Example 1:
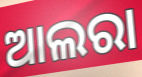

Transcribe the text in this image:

ଆଲରା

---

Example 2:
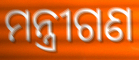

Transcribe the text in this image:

ମନ୍ତ୍ରୀଗଣ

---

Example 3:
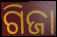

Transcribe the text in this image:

ଗିଜା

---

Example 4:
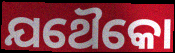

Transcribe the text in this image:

ଯଥୈକୋ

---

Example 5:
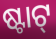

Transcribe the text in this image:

ଷ୍ଟାଟ୍